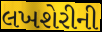
લખશેરીની